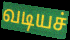
வடியச்